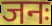
जनः